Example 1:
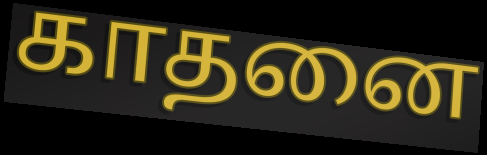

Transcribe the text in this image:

காதனை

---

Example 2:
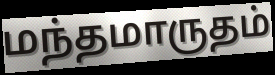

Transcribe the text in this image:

மந்தமாருதம்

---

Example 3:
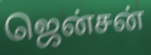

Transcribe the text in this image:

ஜென்சன்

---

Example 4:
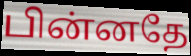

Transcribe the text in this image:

பின்னதே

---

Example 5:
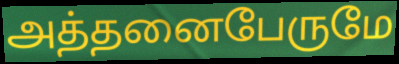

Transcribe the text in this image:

அத்தனைபேருமே